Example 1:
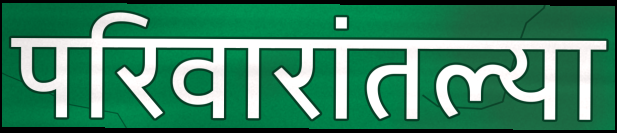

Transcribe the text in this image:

परिवारांतल्या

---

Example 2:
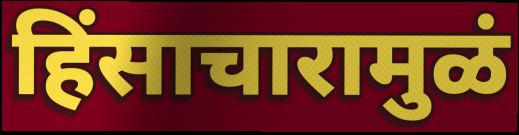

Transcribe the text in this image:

हिंसाचारामुळं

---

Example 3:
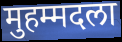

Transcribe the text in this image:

मुहम्मदला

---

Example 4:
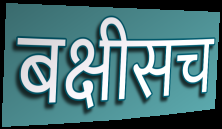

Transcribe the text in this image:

बक्षीसच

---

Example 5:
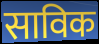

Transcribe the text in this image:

साविक